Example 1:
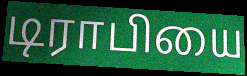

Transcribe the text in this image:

டிராபியை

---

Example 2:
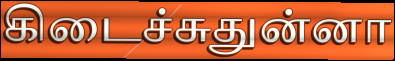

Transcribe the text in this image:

கிடைச்சுதுன்னா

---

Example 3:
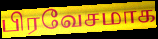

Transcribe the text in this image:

பிரவேசமாக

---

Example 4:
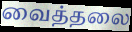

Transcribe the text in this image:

வைத்தலை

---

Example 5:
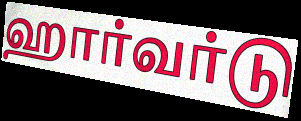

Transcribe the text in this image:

ஹார்வர்டு